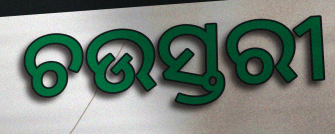
ଚଉସ୍ତରୀ